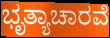
ಭೃತ್ಯಾಚಾರವೆ